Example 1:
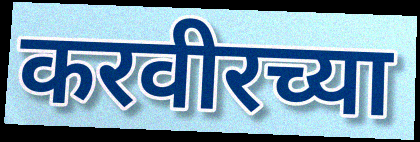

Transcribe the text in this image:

करवीरच्या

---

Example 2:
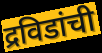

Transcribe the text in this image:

द्रविडांची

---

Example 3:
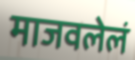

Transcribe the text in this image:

माजवलेलं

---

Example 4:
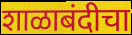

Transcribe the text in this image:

शाळाबंदीचा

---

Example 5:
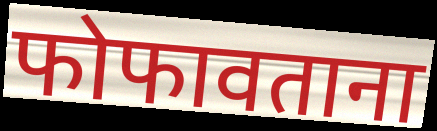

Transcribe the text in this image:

फोफावताना